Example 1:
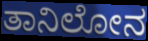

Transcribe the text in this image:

ತಾನಿಲೋನ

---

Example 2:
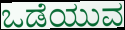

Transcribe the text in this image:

ಒಡೆಯುವ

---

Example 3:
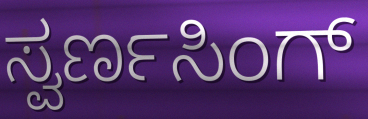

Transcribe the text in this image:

ಸ್ವರ್ಣಸಿಂಗ್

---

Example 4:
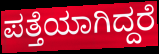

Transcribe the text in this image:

ಪತ್ತೆಯಾಗಿದ್ದರೆ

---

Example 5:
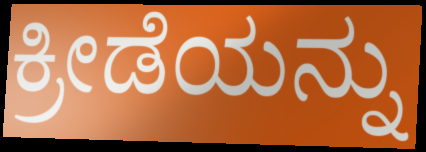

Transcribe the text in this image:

ಕ್ರೀಡೆಯನ್ನು